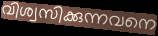
വിശ്വസിക്കുന്നവനെ